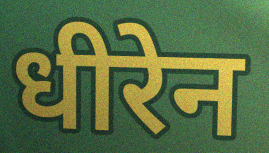
धीरेन